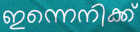
ഇന്നെനിക്ക്